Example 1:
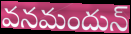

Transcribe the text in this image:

వనమందున్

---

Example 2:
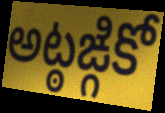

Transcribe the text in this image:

అట్ఠఙ్గికో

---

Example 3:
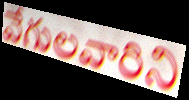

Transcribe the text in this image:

వేగులవారిని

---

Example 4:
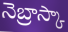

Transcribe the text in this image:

నెబ్రాస్కా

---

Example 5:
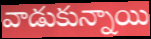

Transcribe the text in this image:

వాడుకున్నాయి